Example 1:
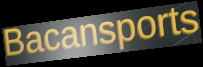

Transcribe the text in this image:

Bacansports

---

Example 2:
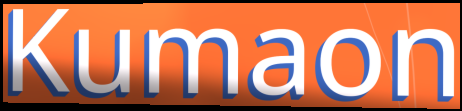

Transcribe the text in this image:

Kumaon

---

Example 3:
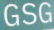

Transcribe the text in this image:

GSG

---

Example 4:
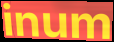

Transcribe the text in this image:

inum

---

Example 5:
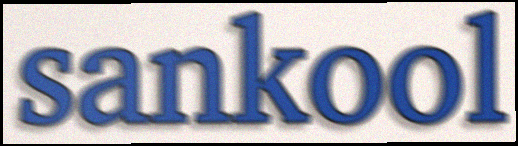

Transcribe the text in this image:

sankool